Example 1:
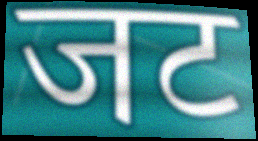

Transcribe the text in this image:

जट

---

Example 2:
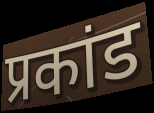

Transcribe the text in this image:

प्रकांड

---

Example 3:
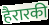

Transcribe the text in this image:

हैरारकी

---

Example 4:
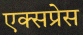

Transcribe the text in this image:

एक्‍सप्रेस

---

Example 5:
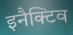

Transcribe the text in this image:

इनैक्टिव